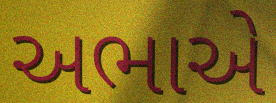
અભાએ